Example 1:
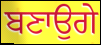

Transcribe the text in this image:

ਬਣਾਉਗੇ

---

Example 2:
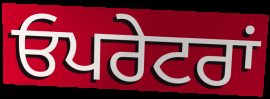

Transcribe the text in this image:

ਓਪਰੇਟਰਾਂ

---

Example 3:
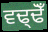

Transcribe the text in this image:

ਵਢ੍ਢੋਁ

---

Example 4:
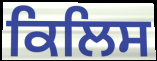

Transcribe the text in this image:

ਕਿਲਿਸ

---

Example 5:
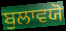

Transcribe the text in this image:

ਬੁਲਾਵਯੋ